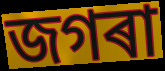
জগৰা